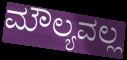
ಮೌಲ್ಯವಲ್ಲ